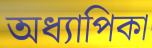
অধ্যাপিকা